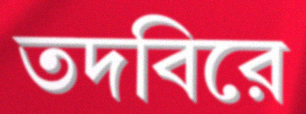
তদবিরে